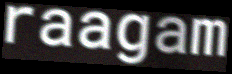
raagam